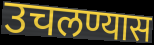
उचलण्यास